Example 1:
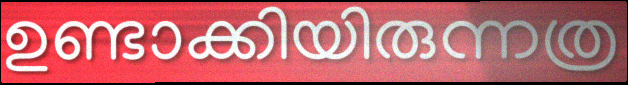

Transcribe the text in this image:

ഉണ്ടാക്കിയിരുന്നത്ര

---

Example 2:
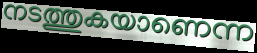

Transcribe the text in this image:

നടത്തുകയാണെന്ന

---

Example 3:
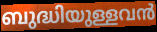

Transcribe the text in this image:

ബുദ്ധിയുള്ളവൻ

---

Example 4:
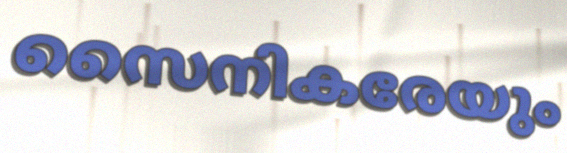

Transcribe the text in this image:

സൈനികരേയും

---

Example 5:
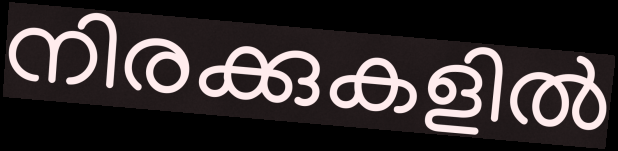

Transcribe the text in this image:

നിരക്കുകളിൽ